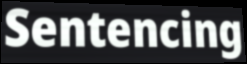
Sentencing